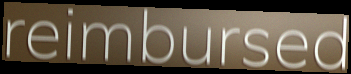
reimbursed